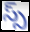
స్స్